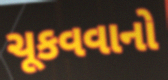
ચૂકવવાનો